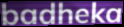
badheka